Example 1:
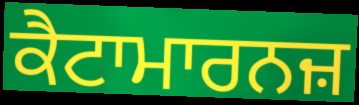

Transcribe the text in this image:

ਕੈਟਾਮਾਰਨਜ਼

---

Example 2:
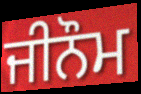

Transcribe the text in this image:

ਜੀਨੌਮ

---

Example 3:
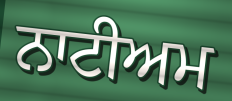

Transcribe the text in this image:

ਨਾਟੀਅਮ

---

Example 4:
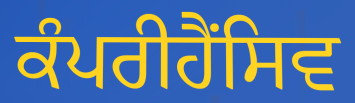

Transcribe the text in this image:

ਕੰਪਰੀਹੈਂਸਿਵ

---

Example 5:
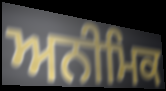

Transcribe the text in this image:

ਅਨੀਮਿਕ